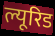
ल्यूरिड